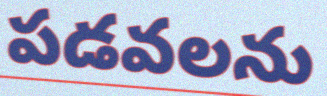
పడవలను